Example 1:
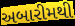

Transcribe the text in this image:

અબારીમથી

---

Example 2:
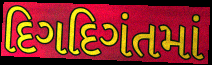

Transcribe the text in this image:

દિગદિગંતમાં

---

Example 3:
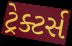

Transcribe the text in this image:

ટ્રેક્ટર્સ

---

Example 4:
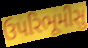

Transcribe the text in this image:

ઉપરિભૂમીસુ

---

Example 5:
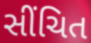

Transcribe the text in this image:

સીંચિત